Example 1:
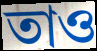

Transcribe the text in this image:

তাও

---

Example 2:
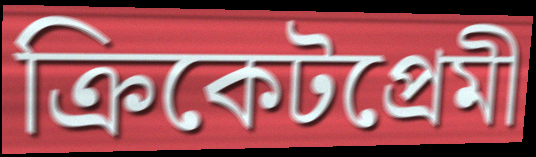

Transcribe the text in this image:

ক্রিকেটপ্রেমী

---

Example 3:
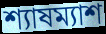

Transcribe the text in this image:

শ্যাষম্যাশ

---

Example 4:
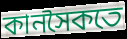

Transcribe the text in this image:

কানসৈকতে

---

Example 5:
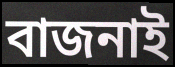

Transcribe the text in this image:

বাজনাই